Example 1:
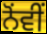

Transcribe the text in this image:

ਨੋਂਵੀਂ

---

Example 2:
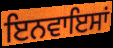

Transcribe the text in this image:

ਇਨਵਾਇਸਾਂ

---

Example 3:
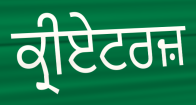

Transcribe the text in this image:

ਕ੍ਰੀਏਟਰਜ਼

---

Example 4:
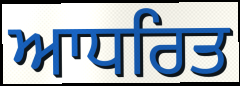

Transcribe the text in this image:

ਆਧਰਿਤ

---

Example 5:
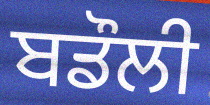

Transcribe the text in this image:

ਬਡੌਲੀ